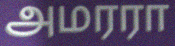
அமரரா